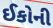
ઈકોની